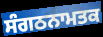
ਸੰਗਠਨਾਮਤਕ